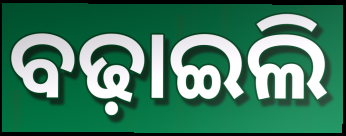
ବଢ଼ାଇଲି